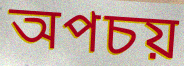
অপচয়